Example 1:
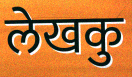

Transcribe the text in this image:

लेखकु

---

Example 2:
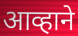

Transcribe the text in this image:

आव्हाने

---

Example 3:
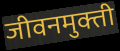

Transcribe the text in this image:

जीवनमुक्ती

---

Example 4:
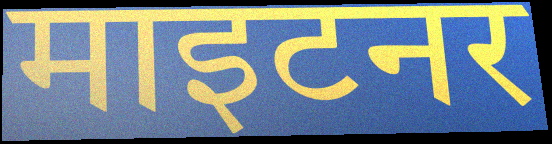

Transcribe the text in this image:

माइटनर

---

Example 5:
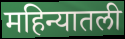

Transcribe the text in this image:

महिन्यातली